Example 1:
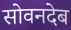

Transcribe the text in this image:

सोवनदेब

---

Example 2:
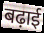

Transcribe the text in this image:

बढ़ाई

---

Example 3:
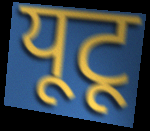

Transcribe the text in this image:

यूटू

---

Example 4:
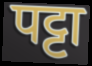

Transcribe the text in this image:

पट्टा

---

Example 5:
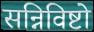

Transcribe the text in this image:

सन्निविष्टो